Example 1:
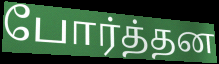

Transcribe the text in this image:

போர்த்தன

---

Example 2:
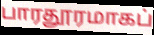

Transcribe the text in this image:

பாரதூரமாகப்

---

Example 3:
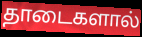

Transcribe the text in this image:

தாடைகளால்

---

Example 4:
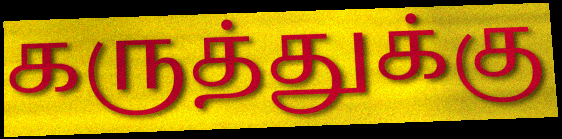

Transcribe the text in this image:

கருத்துக்கு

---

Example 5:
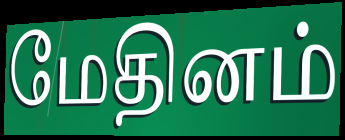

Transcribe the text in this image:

மேதினம்